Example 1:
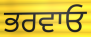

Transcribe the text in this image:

ਭਰਵਾਓ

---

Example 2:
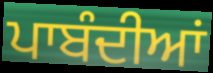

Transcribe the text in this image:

ਪਾਬੰਦੀਆਂ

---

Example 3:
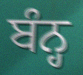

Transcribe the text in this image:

ਬੰਨ੍ਹ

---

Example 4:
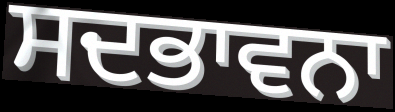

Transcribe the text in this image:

ਸਦਭਾਵਨਾ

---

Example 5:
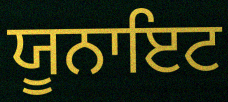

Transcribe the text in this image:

ਯੂਨਾਇਟ